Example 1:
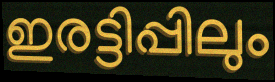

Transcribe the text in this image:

ഇരട്ടിപ്പിലും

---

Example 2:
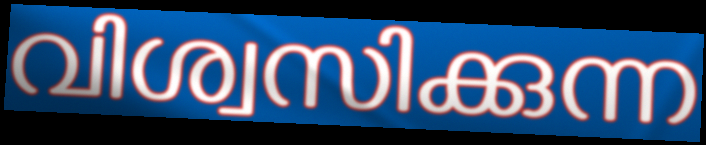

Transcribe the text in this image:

വിശ്വസിക്കുന്ന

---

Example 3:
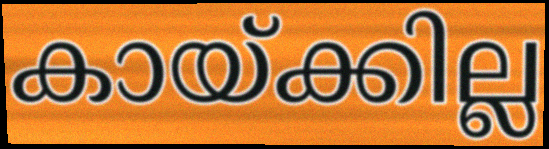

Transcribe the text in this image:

കായ്ക്കില്ല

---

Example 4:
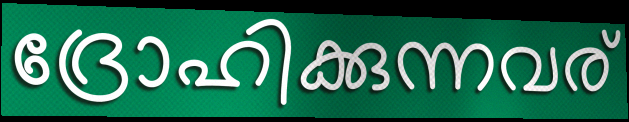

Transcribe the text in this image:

ദ്രോഹിക്കുന്നവര്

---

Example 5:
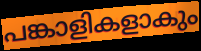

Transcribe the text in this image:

പങ്കാളികളാകും